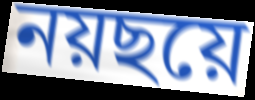
নয়ছয়ে